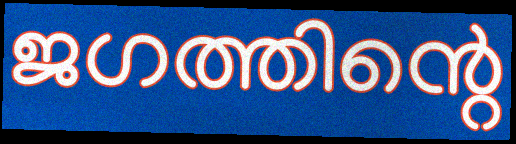
ജഗത്തിന്റെ